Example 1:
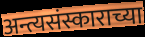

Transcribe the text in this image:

अन्त्यसंस्काराच्या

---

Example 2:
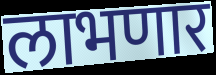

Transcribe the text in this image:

लाभणार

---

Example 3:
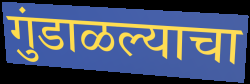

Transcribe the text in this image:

गुंडाळल्याचा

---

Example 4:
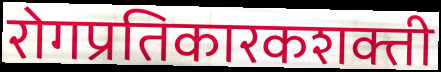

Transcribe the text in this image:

रोगप्रतिकारकशक्ती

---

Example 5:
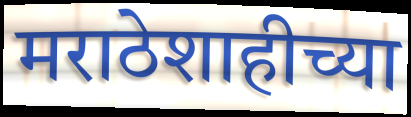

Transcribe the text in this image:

मराठेशाहीच्या